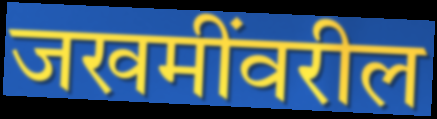
जखमींवरील